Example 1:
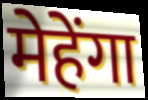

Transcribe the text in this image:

मेहेंगा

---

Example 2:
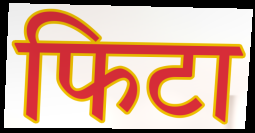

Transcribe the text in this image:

फिटा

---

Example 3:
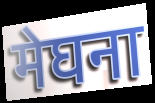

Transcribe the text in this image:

मेघना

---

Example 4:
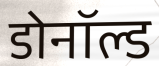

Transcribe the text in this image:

डोनॉल्ड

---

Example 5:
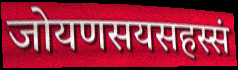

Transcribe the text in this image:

जोयणसयसहस्सं